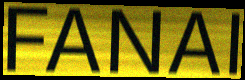
FANAI